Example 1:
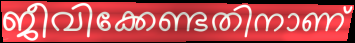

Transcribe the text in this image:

ജീവിക്കേണ്ടതിനാണ്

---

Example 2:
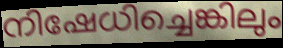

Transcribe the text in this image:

നിഷേധിച്ചെങ്കിലും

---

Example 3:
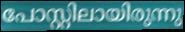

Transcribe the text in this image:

പോസ്റ്റിലായിരുന്നു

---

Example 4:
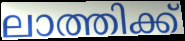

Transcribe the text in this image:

ലാത്തിക്ക്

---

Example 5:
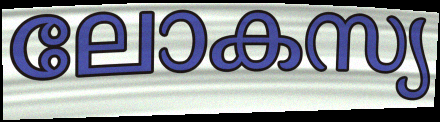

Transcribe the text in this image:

ലോകസ്യ